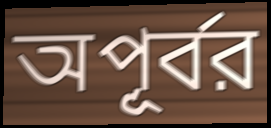
অপূর্বর